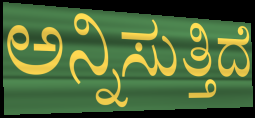
ಅನ್ನಿಸುತ್ತಿದೆ